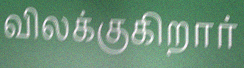
விலக்குகிறார்